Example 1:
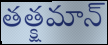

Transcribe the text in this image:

తత్క్షమాన్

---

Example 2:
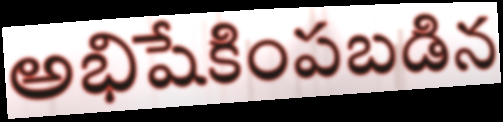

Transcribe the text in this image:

అభిషేకింపబడిన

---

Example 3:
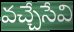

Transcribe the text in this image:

వచ్చేసేవి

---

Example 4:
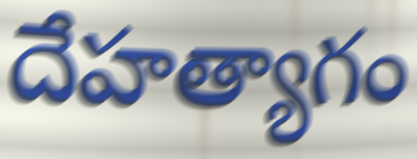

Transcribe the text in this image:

దేహత్యాగం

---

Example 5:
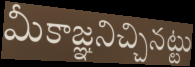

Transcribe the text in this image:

మీకాజ్ఞనిచ్చినట్టు